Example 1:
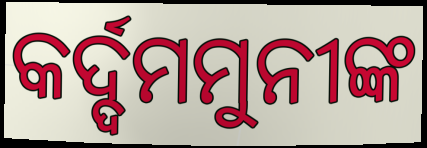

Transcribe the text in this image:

କର୍ଦ୍ଦମମୁନୀଙ୍କ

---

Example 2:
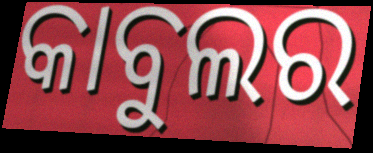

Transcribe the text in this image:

କାବୁଲର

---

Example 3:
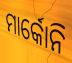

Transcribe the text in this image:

ମାର୍କୋନି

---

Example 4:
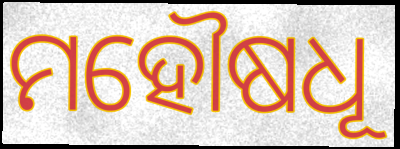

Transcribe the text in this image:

ମହୌଷଧୂ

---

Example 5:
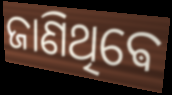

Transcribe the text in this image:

ଜାଣିଥିଵେ